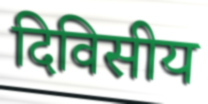
दिविसीय